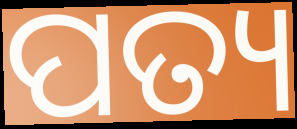
ପତ୍ୟ